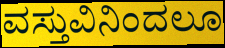
ವಸ್ತುವಿನಿಂದಲೂ